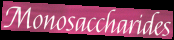
Monosaccharides